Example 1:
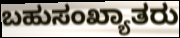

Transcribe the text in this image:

ಬಹುಸಂಖ್ಯಾತರು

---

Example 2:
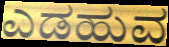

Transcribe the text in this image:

ಎಡಹುವ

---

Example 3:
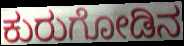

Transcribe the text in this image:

ಕುರುಗೋಡಿನ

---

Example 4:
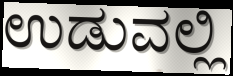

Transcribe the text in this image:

ಉಡುವಲ್ಲಿ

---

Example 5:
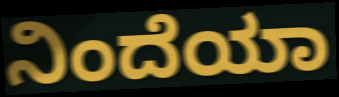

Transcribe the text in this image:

ನಿಂದೆಯಾ